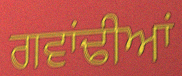
ਗਵਾਂਢੀਆਂ